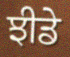
ਝੀਡੇ